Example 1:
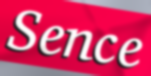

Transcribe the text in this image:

Sence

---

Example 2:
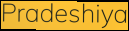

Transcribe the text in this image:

Pradeshiya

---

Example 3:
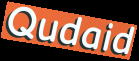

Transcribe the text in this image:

Qudaid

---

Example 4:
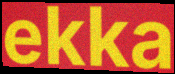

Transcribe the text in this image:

ekka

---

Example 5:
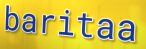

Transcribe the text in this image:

baritaa